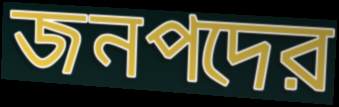
জনপদের